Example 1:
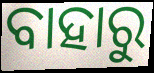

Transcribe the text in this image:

ବାହାରୁ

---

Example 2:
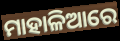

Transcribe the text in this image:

ମାହାଳିଆରେ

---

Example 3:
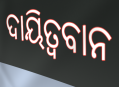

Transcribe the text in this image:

ଦାୟିତ୍ଵବାନ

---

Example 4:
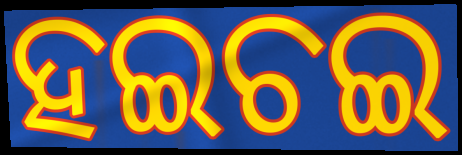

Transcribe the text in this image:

ହଇଚଇ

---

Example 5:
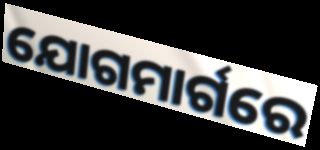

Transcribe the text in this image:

ଯୋଗମାର୍ଗରେ